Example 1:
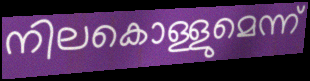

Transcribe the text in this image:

നിലകൊള്ളുമെന്ന്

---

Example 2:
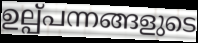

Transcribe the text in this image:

ഉല്പ്പന്നങ്ങളുടെ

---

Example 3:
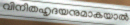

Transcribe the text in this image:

വിനീതഹൃദയനുമാകയാൽ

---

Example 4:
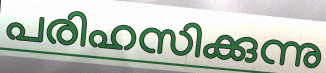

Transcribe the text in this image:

പരിഹസിക്കുന്നു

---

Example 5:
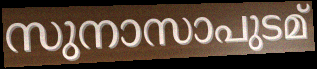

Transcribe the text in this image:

സുനാസാപുടമ്